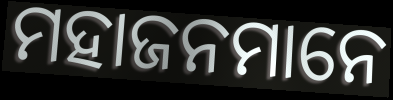
ମହାଜନମାନେ